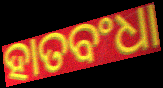
ହାତବଂଧା